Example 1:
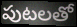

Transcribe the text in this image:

పుటలతో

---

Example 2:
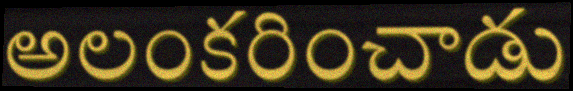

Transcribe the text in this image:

అలంకరించాడు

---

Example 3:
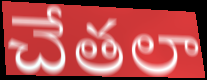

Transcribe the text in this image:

చేతలా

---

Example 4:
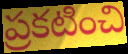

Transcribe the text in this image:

ప్రకటించి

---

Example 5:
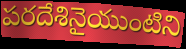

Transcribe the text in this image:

పరదేశినైయుంటిని